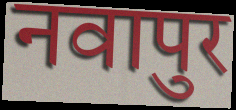
नवापुर